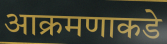
आक्रमणाकडे